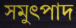
সমুৎপাদ